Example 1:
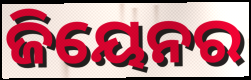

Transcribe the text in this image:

ଜିୟେନର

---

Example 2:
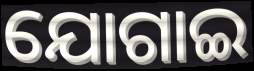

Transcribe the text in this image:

ଯୋଗାଇ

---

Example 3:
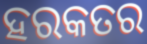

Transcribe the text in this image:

ହରକତର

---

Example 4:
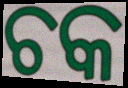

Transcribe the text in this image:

ଚକ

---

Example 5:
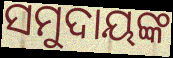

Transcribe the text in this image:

ସମୁଦାୟଙ୍କ